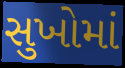
સુખોમાં